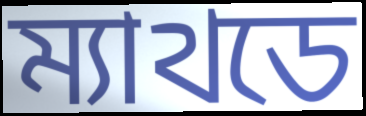
ম্যাথডে